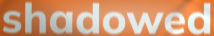
shadowed